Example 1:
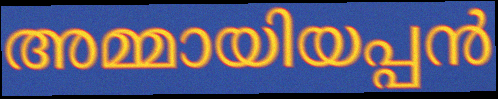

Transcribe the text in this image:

അമ്മായിയപ്പൻ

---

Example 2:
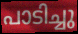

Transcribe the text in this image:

പാടിച്ചു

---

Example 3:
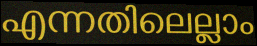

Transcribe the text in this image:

എന്നതിലെല്ലാം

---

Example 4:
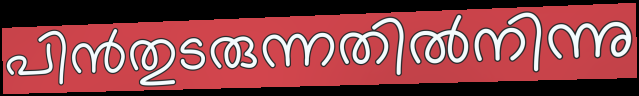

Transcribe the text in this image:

പിൻതുടരുന്നതിൽനിന്നു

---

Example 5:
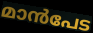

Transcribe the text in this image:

മാൻപേട